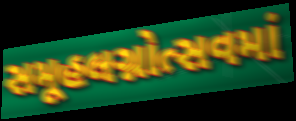
સમૂહલગ્નોત્સવમાં